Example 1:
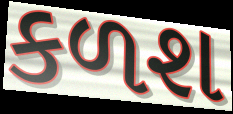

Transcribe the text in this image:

કળશ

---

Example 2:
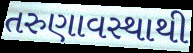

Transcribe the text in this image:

તરુણાવસ્થાથી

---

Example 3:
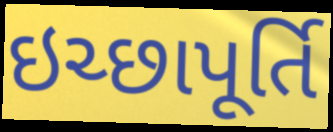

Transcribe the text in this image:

ઇચ્છાપૂર્તિ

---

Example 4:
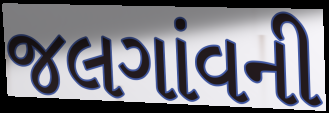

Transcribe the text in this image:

જલગાંવની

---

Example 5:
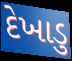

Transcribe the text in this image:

દેખાડુ